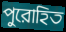
পুরোহিত